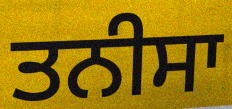
ਤਨੀਸਾ